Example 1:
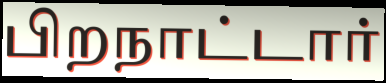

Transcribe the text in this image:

பிறநாட்டார்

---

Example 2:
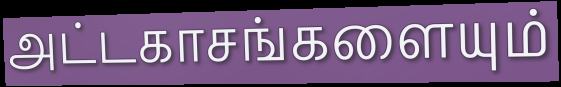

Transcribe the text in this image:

அட்டகாசங்களையும்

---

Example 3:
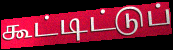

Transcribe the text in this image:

கூட்டிட்டுப்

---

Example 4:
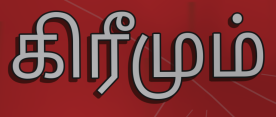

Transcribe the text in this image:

கிரீமும்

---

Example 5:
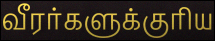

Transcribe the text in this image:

வீரர்களுக்குரிய